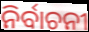
ନିର୍ବାଚନୀ